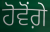
ਹੋਵੋਂਗ਼ੇ